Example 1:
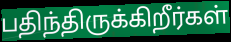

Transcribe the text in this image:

பதிந்திருக்கிறீர்கள்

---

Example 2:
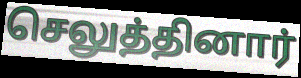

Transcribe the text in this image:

செலுத்தினார்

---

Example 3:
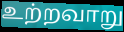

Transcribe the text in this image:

உற்றவாறு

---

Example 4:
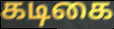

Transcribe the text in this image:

கடிகை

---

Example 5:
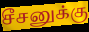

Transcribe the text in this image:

சீசனுக்கு